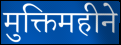
मुक्तिमहीने